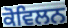
ਕੋਵਿਲਨ